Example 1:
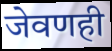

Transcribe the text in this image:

जेवणही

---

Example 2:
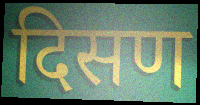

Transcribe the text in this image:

दिसण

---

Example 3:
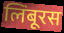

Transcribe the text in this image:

लिंबूरस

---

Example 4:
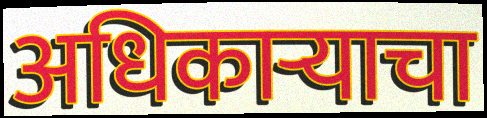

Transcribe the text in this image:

अधिकार्‍याचा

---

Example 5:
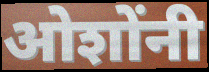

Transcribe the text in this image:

ओशोंनी